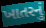
ખાતરનું